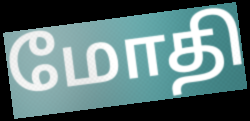
மோதி